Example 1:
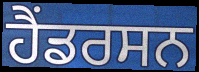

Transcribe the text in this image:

ਹੈਂਡਰਸਨ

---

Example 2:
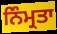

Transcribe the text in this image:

ਨਿੰਮ੍ਰਤਾ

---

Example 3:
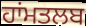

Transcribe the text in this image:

ਹਾਂਮਤਲਬ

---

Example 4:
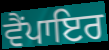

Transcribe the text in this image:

ਵੈਂਪਾਇਰ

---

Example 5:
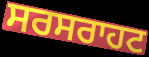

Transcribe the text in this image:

ਸਰਸਰਾਹਟ